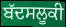
ਬੱਦਸਲੂਕੀ